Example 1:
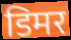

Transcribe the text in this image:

डिमर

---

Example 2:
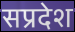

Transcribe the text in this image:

सप्रदेश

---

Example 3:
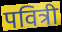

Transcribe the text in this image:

पवित्री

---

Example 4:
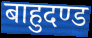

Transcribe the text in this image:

बाहुदण्ड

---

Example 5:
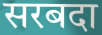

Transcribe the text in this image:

सरबदा